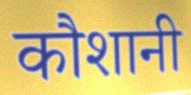
कौशानी